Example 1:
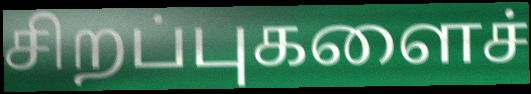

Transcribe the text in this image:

சிறப்புகளைச்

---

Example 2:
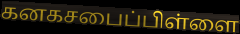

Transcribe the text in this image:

கனகசபைப்பிள்ளை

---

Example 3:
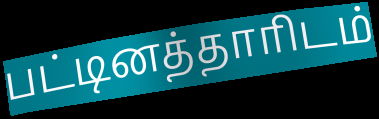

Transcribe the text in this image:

பட்டினத்தாரிடம்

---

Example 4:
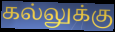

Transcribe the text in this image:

கல்லுக்கு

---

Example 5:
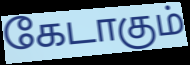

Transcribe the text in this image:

கேடாகும்